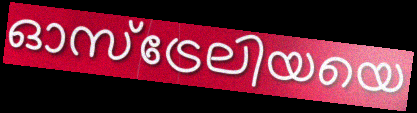
ഓസ്ട്രേലിയയെ